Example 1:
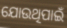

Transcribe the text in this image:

ଯୋଉଥିପାଇଁ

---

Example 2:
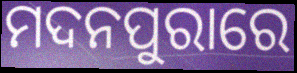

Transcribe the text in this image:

ମଦନପୁରାରେ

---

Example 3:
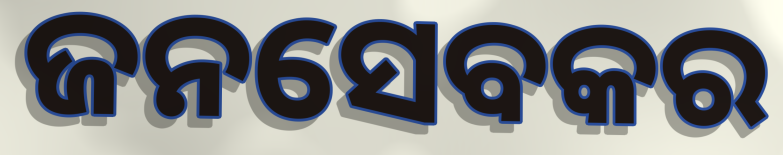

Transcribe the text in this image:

ଜନସେବକର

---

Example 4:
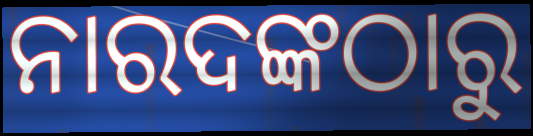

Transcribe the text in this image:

ନାରଦଙ୍କଠାରୁ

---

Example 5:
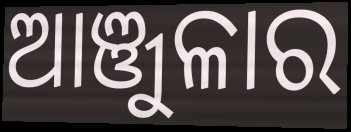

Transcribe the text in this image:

ଆଞ୍ଜୁଳାର